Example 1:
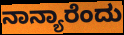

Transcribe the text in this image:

ನಾನ್ಯಾರೆಂದು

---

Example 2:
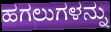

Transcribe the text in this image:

ಹಗಲುಗಳನ್ನು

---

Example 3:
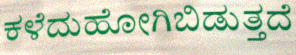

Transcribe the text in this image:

ಕಳೆದುಹೋಗಿಬಿಡುತ್ತದೆ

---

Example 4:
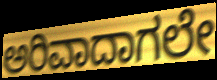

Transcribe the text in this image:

ಅರಿವಾದಾಗಲೇ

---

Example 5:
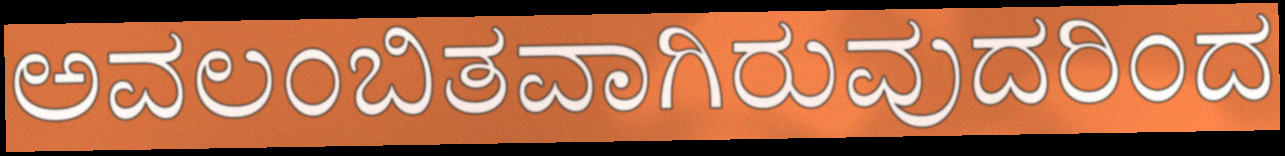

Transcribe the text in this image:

ಅವಲಂಬಿತವಾಗಿರುವುದರಿಂದ